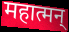
महात्मन्